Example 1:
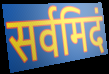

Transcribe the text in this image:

सर्वमिदं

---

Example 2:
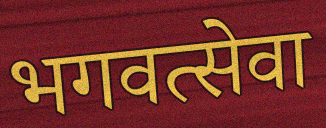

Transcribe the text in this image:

भगवत्सेवा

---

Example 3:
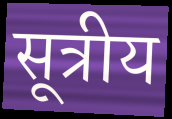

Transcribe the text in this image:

सूत्रीय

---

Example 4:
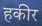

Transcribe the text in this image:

हकीर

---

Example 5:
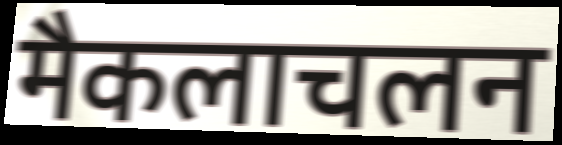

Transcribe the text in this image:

मैकलाचलन